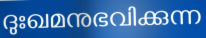
ദുഃഖമനുഭവിക്കുന്ന